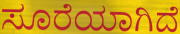
ಸೂರೆಯಾಗಿದೆ